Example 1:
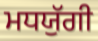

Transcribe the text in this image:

ਮਧਯੁੱਗੀ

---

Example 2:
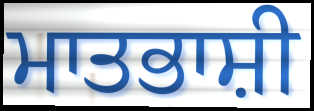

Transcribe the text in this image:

ਮਾਤਭਾਸ਼ੀ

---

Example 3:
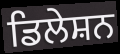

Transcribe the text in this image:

ਡਿਲੇਸ਼ਨ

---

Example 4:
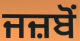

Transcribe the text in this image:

ਜਜ਼ਬੋਂ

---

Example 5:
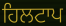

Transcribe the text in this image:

ਹਿਲਟਾਪ